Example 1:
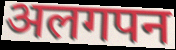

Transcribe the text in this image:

अलगपन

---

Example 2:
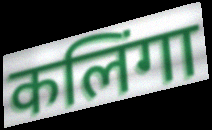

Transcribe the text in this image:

कलिंगा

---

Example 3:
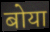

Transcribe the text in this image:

बोया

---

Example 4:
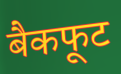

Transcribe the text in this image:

बैकफूट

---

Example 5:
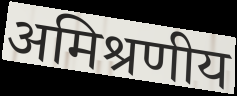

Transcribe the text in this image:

अमिश्रणीय